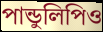
পান্ডুলিপিও